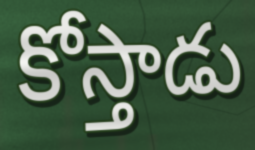
కోస్తాడు